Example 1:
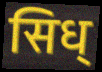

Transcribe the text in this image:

सिध्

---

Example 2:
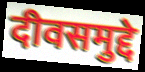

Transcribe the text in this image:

दीवसमुद्दे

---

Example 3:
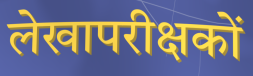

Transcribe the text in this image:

लेखापरीक्षकों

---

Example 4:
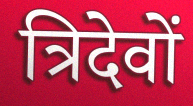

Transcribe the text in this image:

त्रिदेवों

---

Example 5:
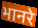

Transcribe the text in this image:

भानरे